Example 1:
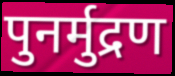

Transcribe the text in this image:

पुनर्मुद्रण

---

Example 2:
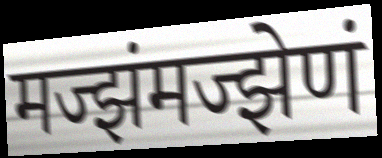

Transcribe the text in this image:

मज्झंमज्झेणं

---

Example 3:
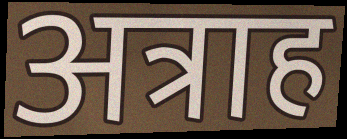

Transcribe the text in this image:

अत्राह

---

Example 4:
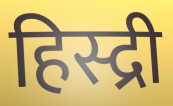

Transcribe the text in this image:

हिस्द्री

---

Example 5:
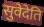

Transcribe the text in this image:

सुवेदेति